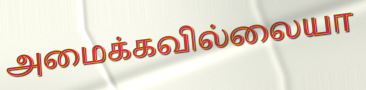
அமைக்கவில்லையா